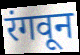
रंगवून